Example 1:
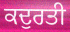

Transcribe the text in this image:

ਕਦੁਰਤੀ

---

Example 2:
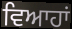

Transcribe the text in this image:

ਵਿਆਹਾਂ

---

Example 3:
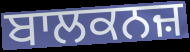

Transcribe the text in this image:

ਬਾਲਕਨਜ਼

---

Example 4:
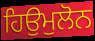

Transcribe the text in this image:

ਹਿਉਮੁਲੋਨ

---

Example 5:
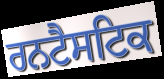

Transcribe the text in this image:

ਰਨਟੈਸਟਿਕ